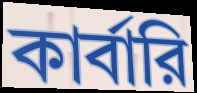
কার্বারি